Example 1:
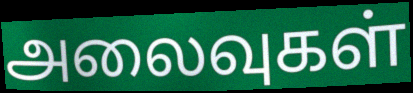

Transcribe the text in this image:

அலைவுகள்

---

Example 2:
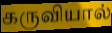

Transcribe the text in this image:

கருவியால்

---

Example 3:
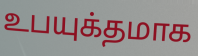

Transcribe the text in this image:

உபயுக்தமாக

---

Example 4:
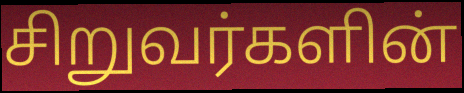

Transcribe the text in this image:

சிறுவர்களின்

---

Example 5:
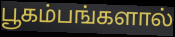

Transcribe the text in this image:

பூகம்பங்களால்